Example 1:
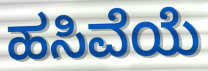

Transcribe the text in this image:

ಹಸಿವೆಯೆ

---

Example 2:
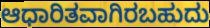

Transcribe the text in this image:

ಆಧಾರಿತವಾಗಿರಬಹುದು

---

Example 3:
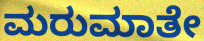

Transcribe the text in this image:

ಮರುಮಾತೇ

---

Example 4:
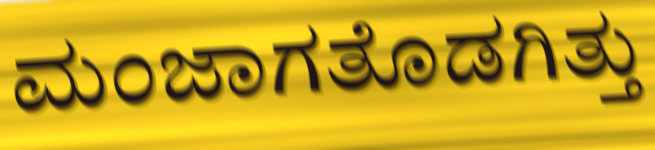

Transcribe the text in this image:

ಮಂಜಾಗತೊಡಗಿತ್ತು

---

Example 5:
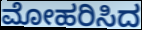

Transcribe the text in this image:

ಮೋಹರಿಸಿದ